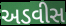
અડવીસ